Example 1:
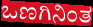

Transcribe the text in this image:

ಒಣಗಿನಿಂತ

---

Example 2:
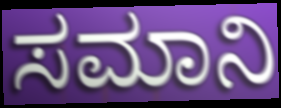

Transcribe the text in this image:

ಸಮಾನಿ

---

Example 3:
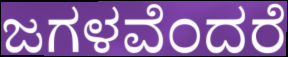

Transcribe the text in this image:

ಜಗಳವೆಂದರೆ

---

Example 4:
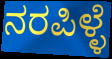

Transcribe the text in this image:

ನರಪಿಳ್ಳೆ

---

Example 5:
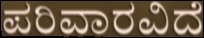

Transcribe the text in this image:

ಪರಿವಾರವಿದೆ